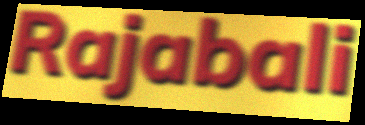
Rajabali